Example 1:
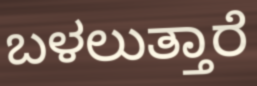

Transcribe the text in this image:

ಬಳಲುತ್ತಾರೆ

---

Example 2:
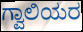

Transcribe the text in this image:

ಗ್ವಾಲಿಯರ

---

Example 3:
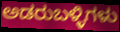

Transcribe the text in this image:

ಅಡರುಬಳ್ಳಿಗಳು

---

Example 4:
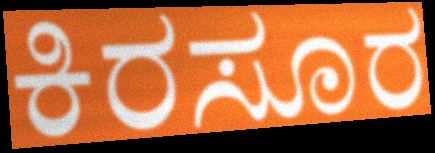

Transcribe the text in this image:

ಕಿರಸೂರ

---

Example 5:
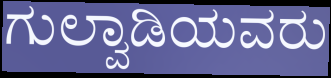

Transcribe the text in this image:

ಗುಲ್ವಾಡಿಯವರು